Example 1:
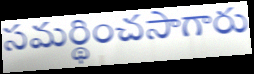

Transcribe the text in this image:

సమర్థించసాగారు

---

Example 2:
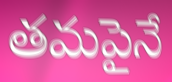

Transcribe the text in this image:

తమపైనే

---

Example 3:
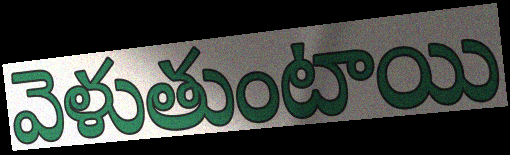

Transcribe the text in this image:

వెళుతుంటాయి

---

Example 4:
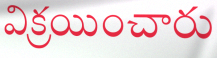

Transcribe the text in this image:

విక్రయించారు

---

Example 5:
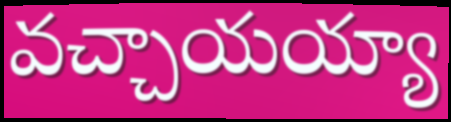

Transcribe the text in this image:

వచ్చాయయ్యా